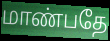
மாண்பதே